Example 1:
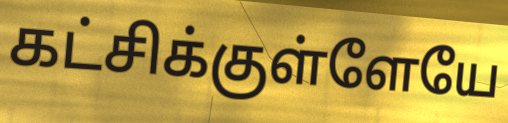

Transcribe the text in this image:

கட்சிக்குள்ளேயே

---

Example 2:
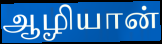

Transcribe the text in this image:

ஆழியான்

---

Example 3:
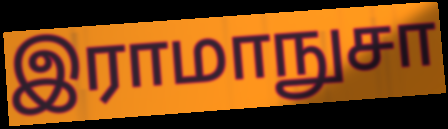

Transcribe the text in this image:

இராமாநுசா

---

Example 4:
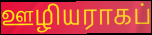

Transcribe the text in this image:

ஊழியராகப்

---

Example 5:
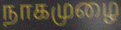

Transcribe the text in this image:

நாகமுழை